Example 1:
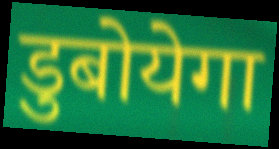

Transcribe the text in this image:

डुबोयेगा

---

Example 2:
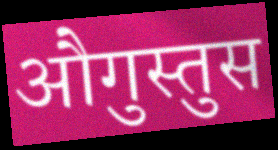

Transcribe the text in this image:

औगुस्तुस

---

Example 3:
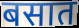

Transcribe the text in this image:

बसात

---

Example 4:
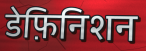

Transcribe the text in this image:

डेफ़िनिशन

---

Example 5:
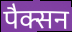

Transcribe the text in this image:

पैक्सन